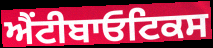
ਐਂਟੀਬਾਓਟਿਕਸ